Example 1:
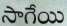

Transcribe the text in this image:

సాగేయి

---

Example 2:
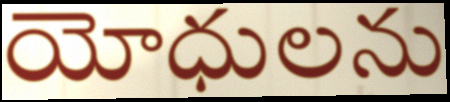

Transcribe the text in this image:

యోధులను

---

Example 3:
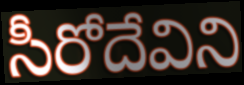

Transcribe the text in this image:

సీరోదేవిని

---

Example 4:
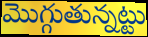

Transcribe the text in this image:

మొగ్గుతున్నట్టు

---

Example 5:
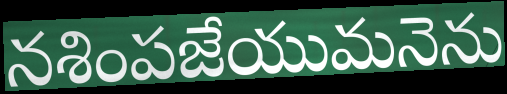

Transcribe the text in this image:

నశింపజేయుమనెను